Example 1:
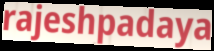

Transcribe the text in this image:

rajeshpadaya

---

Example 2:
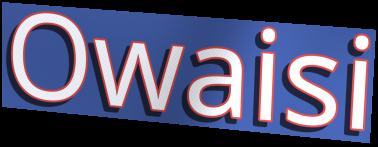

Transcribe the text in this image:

Owaisi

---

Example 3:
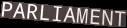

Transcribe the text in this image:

PARLIAMENT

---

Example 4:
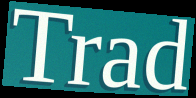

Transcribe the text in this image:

Trad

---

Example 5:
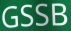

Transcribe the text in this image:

GSSB